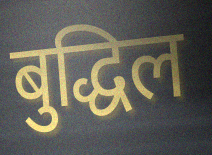
बुद्धिल